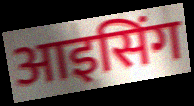
आइसिंग